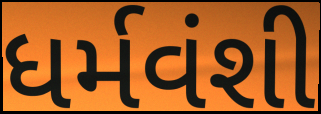
ધર્મવંશી